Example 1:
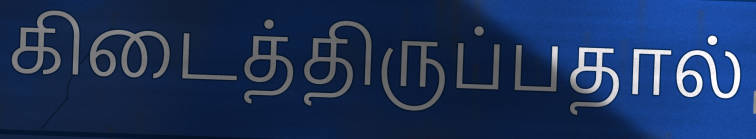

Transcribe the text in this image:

கிடைத்திருப்பதால்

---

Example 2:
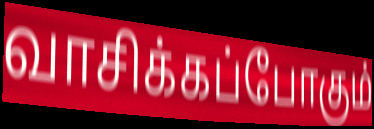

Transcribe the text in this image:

வாசிக்கப்போகும்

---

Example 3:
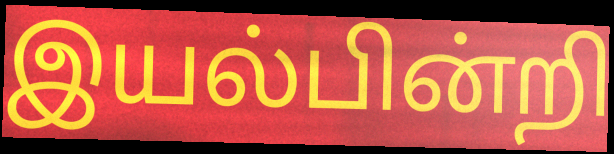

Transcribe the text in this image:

இயல்பின்றி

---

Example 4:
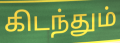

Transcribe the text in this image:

கிடந்தும்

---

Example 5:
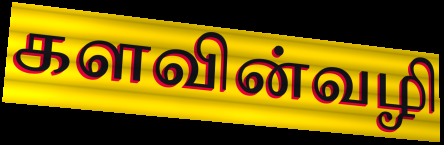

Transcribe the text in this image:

களவின்வழி